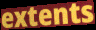
extents